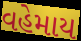
વહેમાય